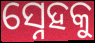
ସ୍ନେହକୁ